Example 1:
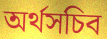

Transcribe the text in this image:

অর্থসচিব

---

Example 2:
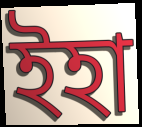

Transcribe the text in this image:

ইহা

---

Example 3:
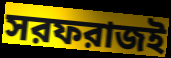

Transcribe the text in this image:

সরফরাজই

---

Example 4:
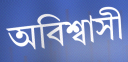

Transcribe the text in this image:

অবিশ্বাসী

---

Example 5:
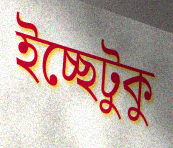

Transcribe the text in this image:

ইচ্ছেটুকু